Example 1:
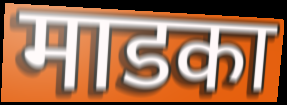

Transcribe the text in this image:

माडका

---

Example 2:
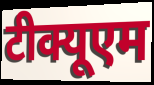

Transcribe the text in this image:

टीक्यूएम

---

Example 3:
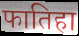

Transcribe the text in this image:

फातिहा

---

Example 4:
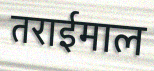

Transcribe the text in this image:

तराईमाल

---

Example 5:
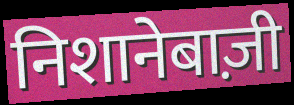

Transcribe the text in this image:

निशानेबाज़ी